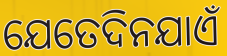
ଯେତେଦିନଯାଏଁ